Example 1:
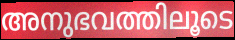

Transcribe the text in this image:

അനുഭവത്തിലൂടെ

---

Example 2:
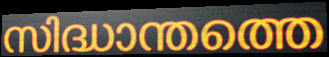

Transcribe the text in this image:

സിദ്ധാന്തത്തെ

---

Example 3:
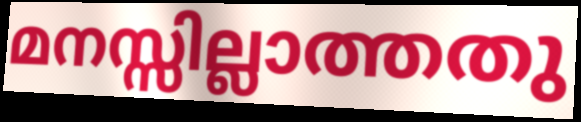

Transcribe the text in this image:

മനസ്സില്ലാത്തതു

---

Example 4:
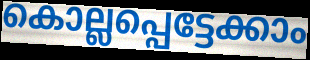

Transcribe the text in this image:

കൊല്ലപ്പെട്ടേക്കാം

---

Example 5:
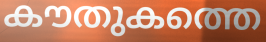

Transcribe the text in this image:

കൗതുകത്തെ